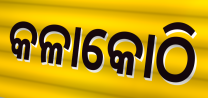
କଳାକୋଠି